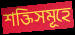
শক্তিসমূহে